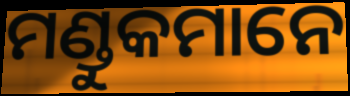
ମଣ୍ଡୁକମାନେ